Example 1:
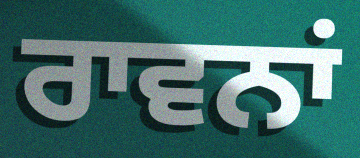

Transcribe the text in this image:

ਰਾਵਨਾਂ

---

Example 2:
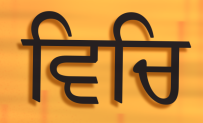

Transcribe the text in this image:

ਵਿਚਿ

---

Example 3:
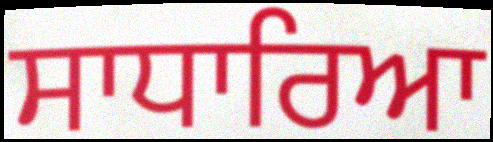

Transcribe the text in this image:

ਸਾਧਾਰਿਆ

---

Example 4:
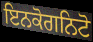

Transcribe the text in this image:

ਇਨਕੋਗਨਿਟੋ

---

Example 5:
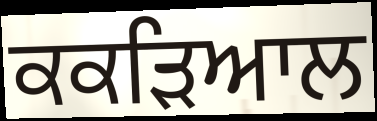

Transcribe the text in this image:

ਕਕੜਿਆਲ